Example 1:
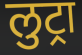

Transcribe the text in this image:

लुट्रा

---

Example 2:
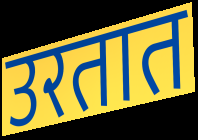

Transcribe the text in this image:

उरतात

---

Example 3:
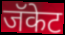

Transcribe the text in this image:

जॅकेट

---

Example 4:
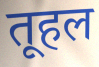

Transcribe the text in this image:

तूहल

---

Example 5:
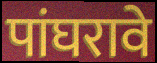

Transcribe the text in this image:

पांघरावे